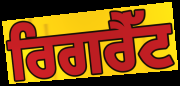
ਰਿਗਰੈੱਟ